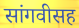
सांगवीसह